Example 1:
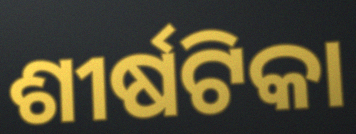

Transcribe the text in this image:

ଶୀର୍ଷଟିକା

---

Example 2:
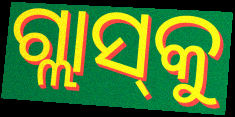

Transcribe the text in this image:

ଗ୍ଲାସ୍‌କୁ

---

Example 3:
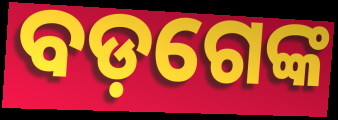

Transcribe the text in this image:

ବଡ଼ଗେଙ୍କ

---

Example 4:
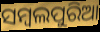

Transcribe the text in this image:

ସମ୍ବଲପୁରିଆ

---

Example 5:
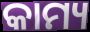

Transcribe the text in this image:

କାମ୍ୟ